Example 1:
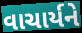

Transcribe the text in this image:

વાચાર્યને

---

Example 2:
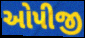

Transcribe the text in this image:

ઓપીજી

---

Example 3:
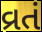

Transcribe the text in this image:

વ્રતં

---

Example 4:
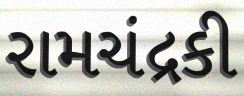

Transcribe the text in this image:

રામચંદ્રકી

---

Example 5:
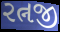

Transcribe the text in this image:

રત્નજી